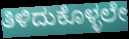
ತಿಳಿದುಕೊಳ್ಳಲೇ